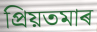
প্ৰিয়তমাৰ